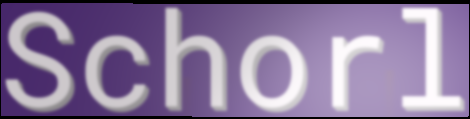
Schorl